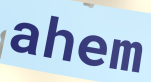
ahem